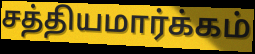
சத்தியமார்க்கம்